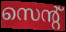
സെന്റ്